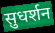
सुधर्शन